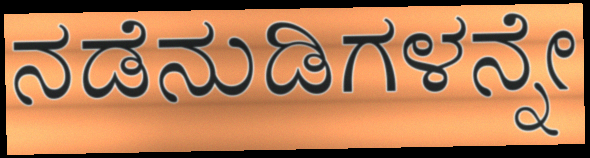
ನಡೆನುಡಿಗಳನ್ನೇ